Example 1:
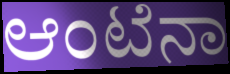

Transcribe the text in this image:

ಆಂಟೆನಾ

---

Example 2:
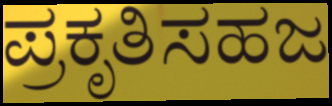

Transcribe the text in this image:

ಪ್ರಕೃತಿಸಹಜ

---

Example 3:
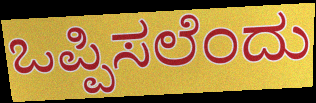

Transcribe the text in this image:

ಒಪ್ಪಿಸಲೆಂದು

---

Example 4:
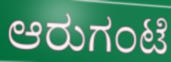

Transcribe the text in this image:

ಆರುಗಂಟೆ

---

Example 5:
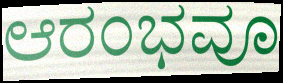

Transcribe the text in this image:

ಆರಂಭವೂ